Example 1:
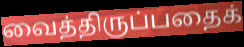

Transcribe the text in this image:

வைத்திருப்பதைக்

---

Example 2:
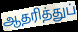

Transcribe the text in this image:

ஆதரித்துப்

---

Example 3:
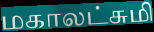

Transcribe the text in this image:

மகாலட்சுமி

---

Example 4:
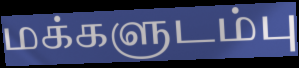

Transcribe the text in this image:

மக்களுடம்பு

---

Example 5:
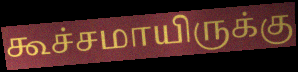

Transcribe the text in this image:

கூச்சமாயிருக்கு